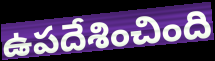
ఉపదేశించింది